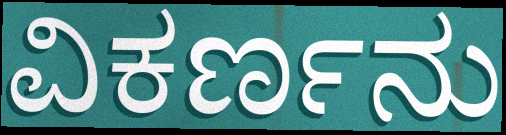
ವಿಕರ್ಣನು